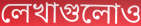
লেখাগুলোও